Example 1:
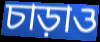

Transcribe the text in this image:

চাড়াও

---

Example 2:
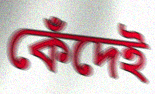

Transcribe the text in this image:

কেঁদেই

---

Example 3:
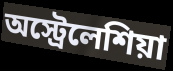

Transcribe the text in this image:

অস্ট্রেলেশিয়া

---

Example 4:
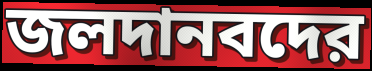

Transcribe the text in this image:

জলদানবদের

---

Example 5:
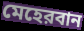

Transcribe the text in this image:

মেহেরবান